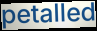
petalled